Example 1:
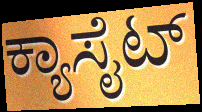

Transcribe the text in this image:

ಕ್ಯಾಸೈಟ್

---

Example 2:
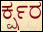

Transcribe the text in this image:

ರ್ಕ್ಷರ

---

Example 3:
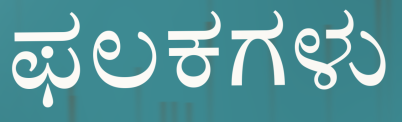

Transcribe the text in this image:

ಫಲಕಗಳು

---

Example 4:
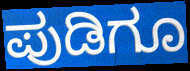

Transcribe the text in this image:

ಪುಡಿಗೂ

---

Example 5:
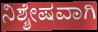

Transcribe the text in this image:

ನಿಶ್ಶೇಷವಾಗಿ